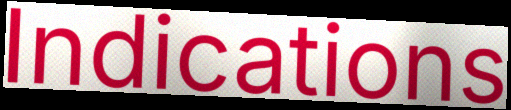
Indications